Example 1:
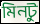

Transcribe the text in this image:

মিনটু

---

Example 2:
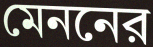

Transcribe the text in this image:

মেননের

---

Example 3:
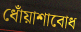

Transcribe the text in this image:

ধোঁয়াশাবোধ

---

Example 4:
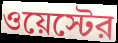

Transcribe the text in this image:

ওয়েস্টের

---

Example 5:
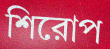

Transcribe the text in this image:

শিরোপ